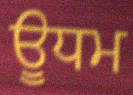
ਊਧਮ